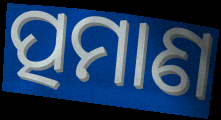
ତ୍ପମାଣ